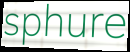
sphure